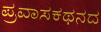
ಪ್ರವಾಸಕಥನದ